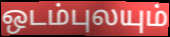
ஒடம்புலயும்